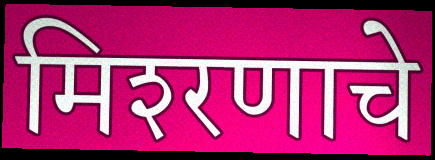
मिश्रणाचे